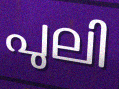
പുലി